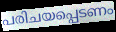
പരിചയപ്പെടണം